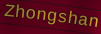
Zhongshan